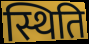
स्थिति